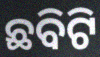
ଛବିଟି